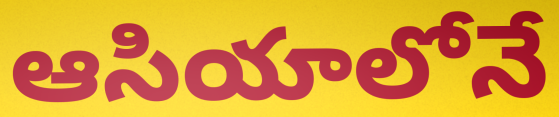
ఆసియాలోనే